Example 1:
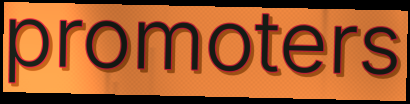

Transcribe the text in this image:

promoters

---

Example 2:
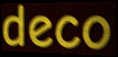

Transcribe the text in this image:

deco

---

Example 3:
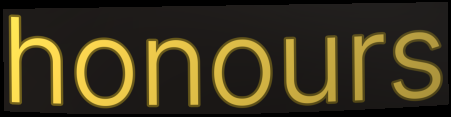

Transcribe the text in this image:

honours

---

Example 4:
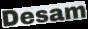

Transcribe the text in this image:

Desam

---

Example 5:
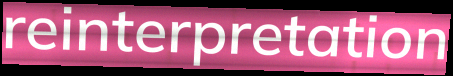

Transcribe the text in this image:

reinterpretation